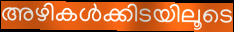
അഴികൾക്കിടയിലൂടെ